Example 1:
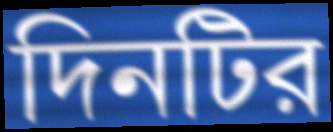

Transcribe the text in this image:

দিনটির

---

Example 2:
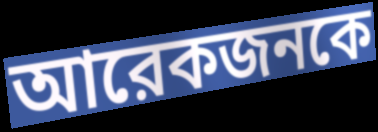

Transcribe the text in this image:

আরেকজনকে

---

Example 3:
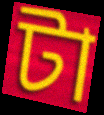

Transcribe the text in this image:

টা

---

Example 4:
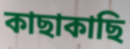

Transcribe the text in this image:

কাছাকাছি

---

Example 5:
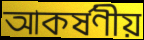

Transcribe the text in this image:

আকর্ষণীয়